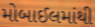
મોબાઈલમાંથી